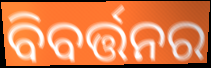
ବିବର୍ତ୍ତନର